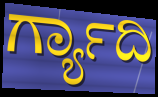
ರ್ಗ್ಯಾದಿ